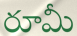
రూమీ